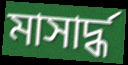
মাসার্দ্ধ